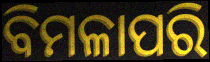
ବିମଳାପରି